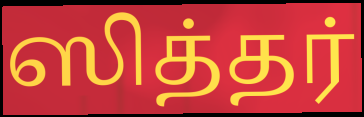
ஸித்தர்